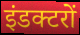
इंडक्टरों